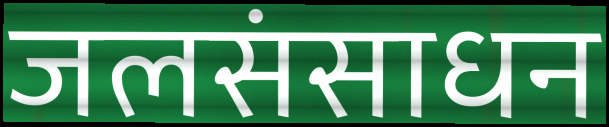
जलसंसाधन